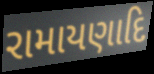
રામાયણાદિ